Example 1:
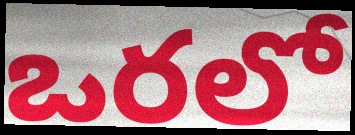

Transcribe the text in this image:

ఒరలో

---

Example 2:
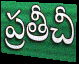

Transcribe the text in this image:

ప్రతీచీ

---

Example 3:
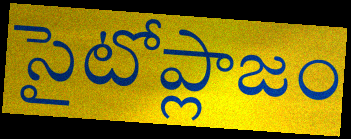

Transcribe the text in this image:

సైటోప్లాజం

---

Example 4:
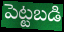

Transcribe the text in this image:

పెట్టబడి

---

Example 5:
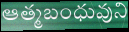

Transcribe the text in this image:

ఆత్మబంధువుని